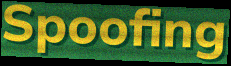
Spoofing